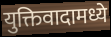
युक्तिवादामध्ये